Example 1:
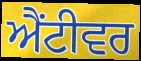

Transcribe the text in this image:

ਐਂਟੀਵਰ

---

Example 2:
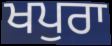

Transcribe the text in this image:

ਖਪੁਰਾ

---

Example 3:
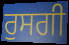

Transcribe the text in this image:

ਰੁਸਗੀ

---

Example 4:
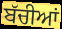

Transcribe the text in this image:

ਬੱਚੀਆਂ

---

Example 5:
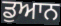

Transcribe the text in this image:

ਡੁਆਨ